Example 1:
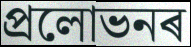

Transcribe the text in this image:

প্ৰলোভনৰ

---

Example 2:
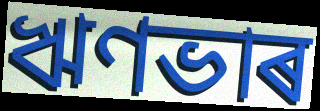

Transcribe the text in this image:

ঋণভাৰ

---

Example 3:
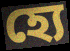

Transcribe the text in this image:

হ্যে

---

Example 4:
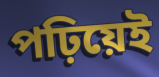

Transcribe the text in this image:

পঢ়িয়েই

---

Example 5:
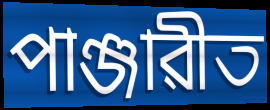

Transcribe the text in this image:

পাঞ্জাৱীত